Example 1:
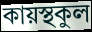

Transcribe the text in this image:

কায়স্থকুল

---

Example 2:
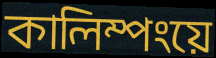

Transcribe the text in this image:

কালিম্পংয়ে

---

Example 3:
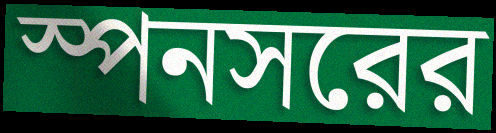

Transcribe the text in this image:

স্পনসরের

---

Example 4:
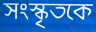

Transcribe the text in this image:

সংস্কৃতকে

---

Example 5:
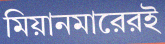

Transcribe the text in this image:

মিয়ানমারেরই